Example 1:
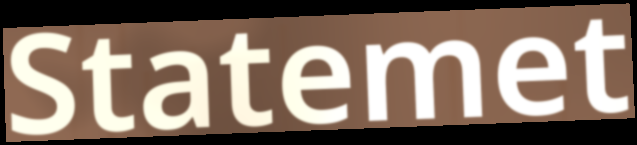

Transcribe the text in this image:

Statemet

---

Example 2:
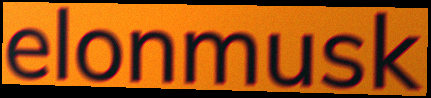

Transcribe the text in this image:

elonmusk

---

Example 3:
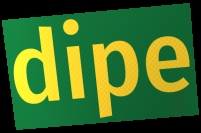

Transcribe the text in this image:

dipe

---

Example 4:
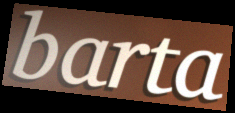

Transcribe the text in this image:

barta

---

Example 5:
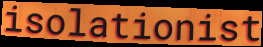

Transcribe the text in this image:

isolationist